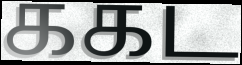
ககட